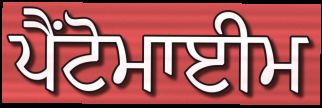
ਪੈਂਟੋਮਾਈਮ